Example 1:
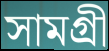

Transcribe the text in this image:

সামগ্ৰী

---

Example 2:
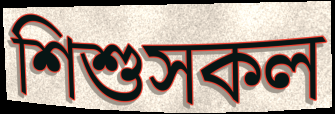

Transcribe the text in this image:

শিশুসকল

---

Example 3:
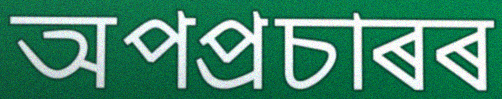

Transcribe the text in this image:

অপপ্ৰচাৰৰ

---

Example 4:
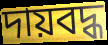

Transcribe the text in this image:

দায়বদ্ধ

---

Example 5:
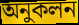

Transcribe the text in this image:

অনুকলন